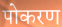
पोकरण